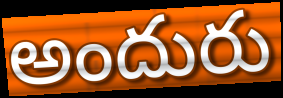
అందురు